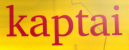
kaptai